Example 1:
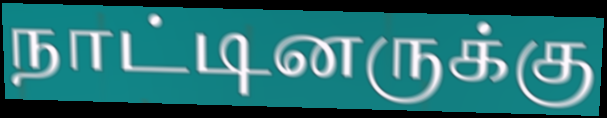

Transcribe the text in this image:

நாட்டினருக்கு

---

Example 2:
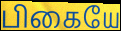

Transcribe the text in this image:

பிகையே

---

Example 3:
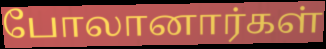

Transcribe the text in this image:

போலானார்கள்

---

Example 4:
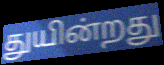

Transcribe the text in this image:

துயின்றது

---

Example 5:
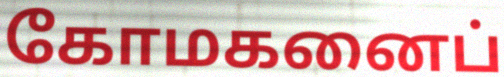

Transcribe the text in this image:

கோமகனைப்